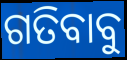
ଗତିବାବୁ